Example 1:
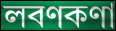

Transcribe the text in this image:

লবণকণা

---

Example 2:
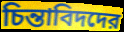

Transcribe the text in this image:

চিন্তাবিদদের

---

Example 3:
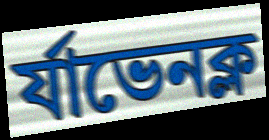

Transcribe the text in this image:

র্যাভেনক্ল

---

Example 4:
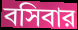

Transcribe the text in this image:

বসিবার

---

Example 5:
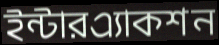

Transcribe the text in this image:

ইন্টারএ্যাকশন